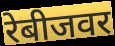
रेबीजवर